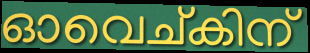
ഓവെച്കിന്